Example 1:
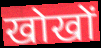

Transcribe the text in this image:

खोखों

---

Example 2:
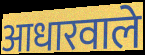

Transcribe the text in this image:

आधारवाले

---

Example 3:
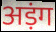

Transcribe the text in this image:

अड़ंग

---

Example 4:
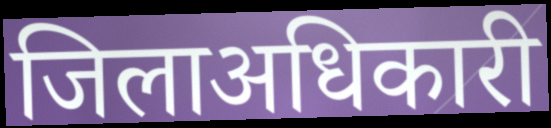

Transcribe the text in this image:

जिलाअधिकारी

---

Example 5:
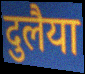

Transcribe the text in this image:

दुलैया